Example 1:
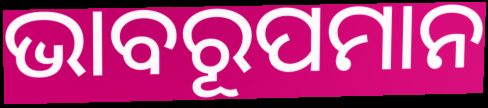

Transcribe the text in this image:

ଭାବରୂପମାନ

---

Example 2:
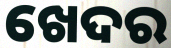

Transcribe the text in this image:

ଖେଦର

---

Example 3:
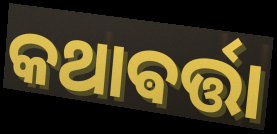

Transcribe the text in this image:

କଥାଵର୍ତ୍ତା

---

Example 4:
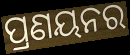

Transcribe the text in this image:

ପ୍ରଣୟନର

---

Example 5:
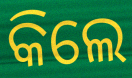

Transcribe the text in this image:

କିଲେ